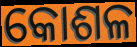
କୋଶଳ